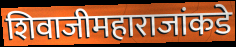
शिवाजीमहाराजांकडे